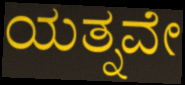
ಯತ್ನವೇ